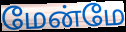
மேன்மே